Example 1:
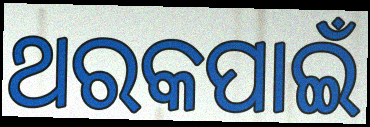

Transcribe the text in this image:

ଥରକପାଇଁ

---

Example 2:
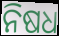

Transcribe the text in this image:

ନିଷଧ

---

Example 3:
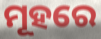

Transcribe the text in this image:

ମୂହରେ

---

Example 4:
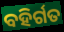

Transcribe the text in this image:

ବହିର୍ଗତ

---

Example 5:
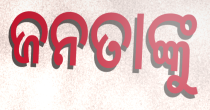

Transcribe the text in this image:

ଜନତାଙ୍କୁ